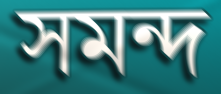
সমন্দ